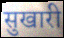
सुखारी